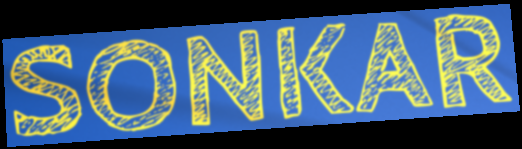
SONKAR